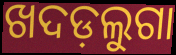
ଖଦଡ଼ଲୁଗା